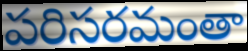
పరిసరమంతా